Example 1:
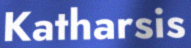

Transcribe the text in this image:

Katharsis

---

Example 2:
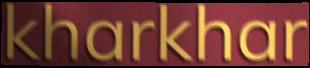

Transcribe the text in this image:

kharkhar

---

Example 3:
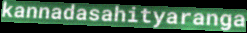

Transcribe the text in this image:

kannadasahityaranga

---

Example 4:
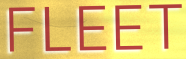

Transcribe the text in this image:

FLEET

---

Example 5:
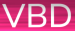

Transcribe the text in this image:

VBD